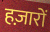
हज़ारों